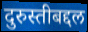
दुरुस्तीबद्दल